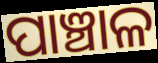
ପାଞ୍ଚାଳ